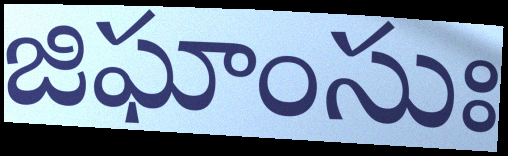
జిఘాంసుః